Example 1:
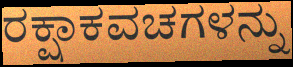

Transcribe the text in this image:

ರಕ್ಷಾಕವಚಗಳನ್ನು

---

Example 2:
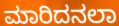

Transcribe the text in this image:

ಮಾರಿದನಲಾ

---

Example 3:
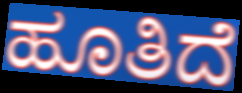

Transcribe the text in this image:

ಹೂತಿದೆ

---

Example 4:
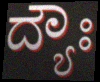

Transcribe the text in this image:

ದ್ಯೌಃ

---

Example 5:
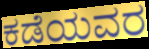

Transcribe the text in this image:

ಕಡೆಯವರ